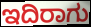
ಇದಿರಾಗು